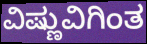
ವಿಷ್ಣುವಿಗಿಂತ